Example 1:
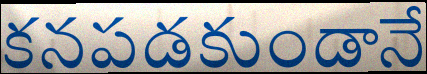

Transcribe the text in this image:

కనపడకుండానే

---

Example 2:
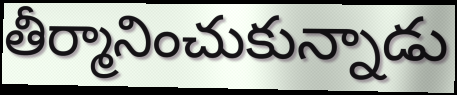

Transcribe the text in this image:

తీర్మానించుకున్నాడు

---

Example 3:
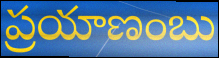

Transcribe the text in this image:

ప్రయాణంబు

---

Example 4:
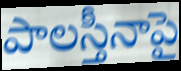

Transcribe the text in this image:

పాలస్తీనాపై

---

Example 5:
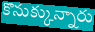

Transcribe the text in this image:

కొనుక్కున్నారు